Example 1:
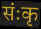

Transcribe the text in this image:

संःकृ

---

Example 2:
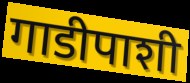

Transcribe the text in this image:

गाडीपाशी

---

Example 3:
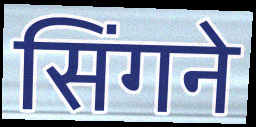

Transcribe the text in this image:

सिंगने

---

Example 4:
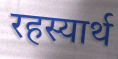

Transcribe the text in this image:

रहस्यार्थ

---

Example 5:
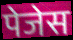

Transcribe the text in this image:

पेजेस